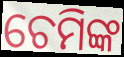
ଚେମିଙ୍କ